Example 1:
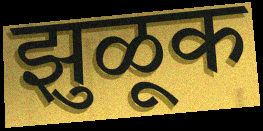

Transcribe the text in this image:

झुळूक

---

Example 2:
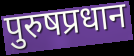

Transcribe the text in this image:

पुरुषप्रधान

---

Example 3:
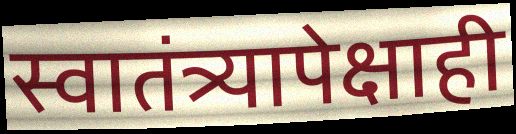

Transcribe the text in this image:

स्वातंत्र्यापेक्षाही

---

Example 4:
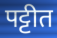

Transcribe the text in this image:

पट्टीत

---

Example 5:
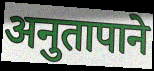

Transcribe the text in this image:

अनुतापाने